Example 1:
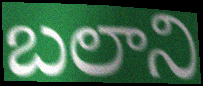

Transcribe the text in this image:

బలాని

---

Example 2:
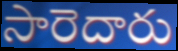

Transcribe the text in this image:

సారెదారు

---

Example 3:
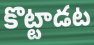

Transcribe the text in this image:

కొట్టాడట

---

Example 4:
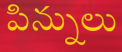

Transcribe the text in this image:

పిన్నులు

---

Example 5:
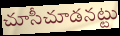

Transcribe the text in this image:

చూసీచూడనట్టు